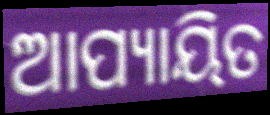
ଆପ୍ଯାୟିତ